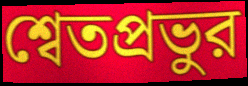
শ্বেতপ্রভুর